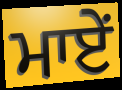
ਮਾਏਂ